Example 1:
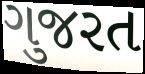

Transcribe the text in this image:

ગુજરત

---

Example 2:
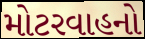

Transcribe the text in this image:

મોટરવાહનો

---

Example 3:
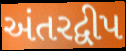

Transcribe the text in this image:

અંતરદ્વીપ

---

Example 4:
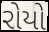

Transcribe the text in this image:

રોયો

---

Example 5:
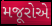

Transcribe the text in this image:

મજૂરોએ